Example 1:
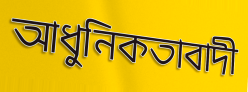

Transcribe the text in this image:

আধুনিকতাবাদী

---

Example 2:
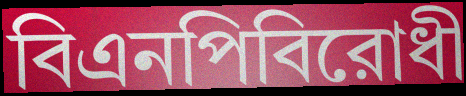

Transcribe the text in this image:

বিএনপিবিরোধী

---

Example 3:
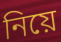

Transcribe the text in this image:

নিয়ে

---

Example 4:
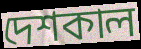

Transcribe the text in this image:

দেশকাল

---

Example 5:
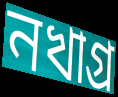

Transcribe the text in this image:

নখাগ্র